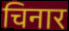
चिनार